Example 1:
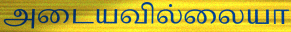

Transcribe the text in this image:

அடையவில்லையா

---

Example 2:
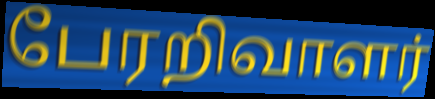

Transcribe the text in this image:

பேரறிவாளர்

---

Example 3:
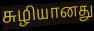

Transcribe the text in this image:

சுழியானது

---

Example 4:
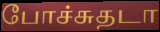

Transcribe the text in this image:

போச்சுதடா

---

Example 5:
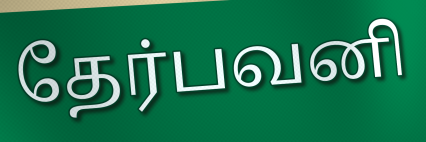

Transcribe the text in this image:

தேர்பவனி